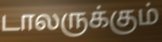
டாலருக்கும்